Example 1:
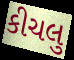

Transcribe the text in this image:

કીચલુ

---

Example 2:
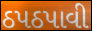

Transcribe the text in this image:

ઠપઠપાવી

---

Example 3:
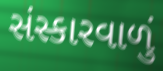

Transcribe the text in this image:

સંસ્કારવાળું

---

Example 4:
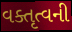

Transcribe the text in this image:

વક્તૃત્વની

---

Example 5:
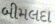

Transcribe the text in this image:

બીમલદા